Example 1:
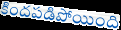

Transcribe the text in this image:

కిందపడిపోయింది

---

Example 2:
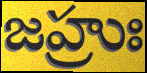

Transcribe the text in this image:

జహ్రుః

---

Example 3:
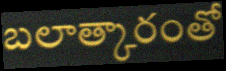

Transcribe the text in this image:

బలాత్కారంతో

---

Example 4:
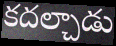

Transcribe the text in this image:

కదల్చాడు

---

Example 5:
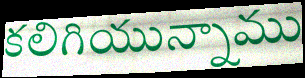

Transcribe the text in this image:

కలిగియున్నాము